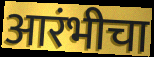
आरंभीचा